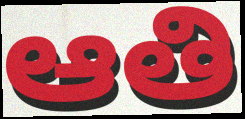
ఆతి